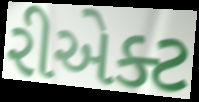
રીએક્ટ